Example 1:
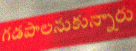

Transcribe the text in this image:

గడపాలనుకున్నారు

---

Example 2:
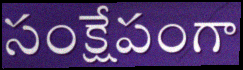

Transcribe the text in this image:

సంక్షేపంగా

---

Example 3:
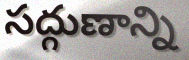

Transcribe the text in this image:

సద్గుణాన్ని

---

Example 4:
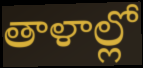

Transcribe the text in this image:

తాళాల్లో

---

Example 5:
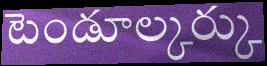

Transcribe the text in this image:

టెండూల్కర్కు